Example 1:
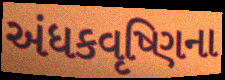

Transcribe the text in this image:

અંધકવૃષ્ણિના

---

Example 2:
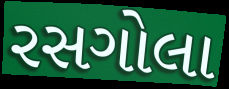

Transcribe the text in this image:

રસગોલા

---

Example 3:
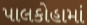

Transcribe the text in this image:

પાલકોહામાં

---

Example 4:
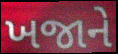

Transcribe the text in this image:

ખજાને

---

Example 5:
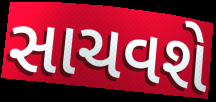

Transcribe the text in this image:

સાચવશે